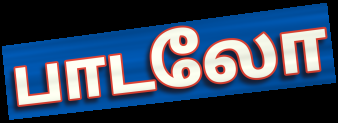
பாடலோ